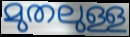
മുതലുള്ള